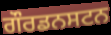
ਗੌਰਡਨਸਟਨ